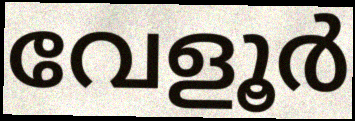
വേളൂർ